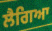
ਲੈਗਿਆ